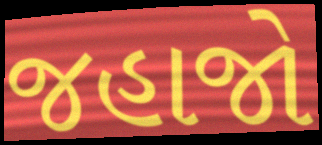
જહાજો